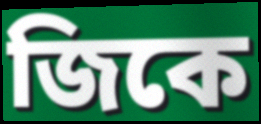
জিকে